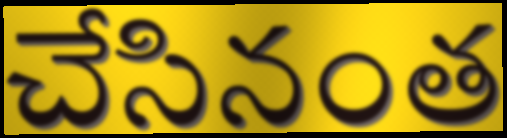
చేసినంత